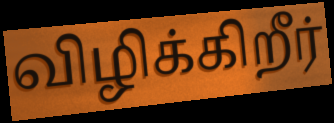
விழிக்கிறீர்